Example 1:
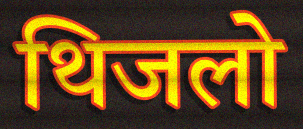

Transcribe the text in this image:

थिजलो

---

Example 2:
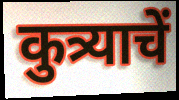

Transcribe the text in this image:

कुत्र्याचें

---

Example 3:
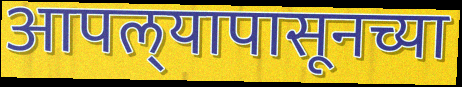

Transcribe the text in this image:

आपल्यापासूनच्या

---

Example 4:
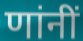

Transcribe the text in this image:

णांनीं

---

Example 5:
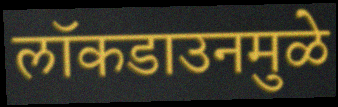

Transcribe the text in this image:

लॉकडाउनमुळे